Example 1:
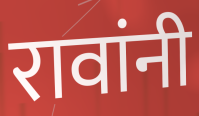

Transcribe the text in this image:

रावांनी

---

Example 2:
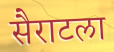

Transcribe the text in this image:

सैराटला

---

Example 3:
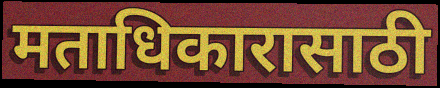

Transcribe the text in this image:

मताधिकारासाठी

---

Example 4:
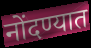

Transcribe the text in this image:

नोंदण्यात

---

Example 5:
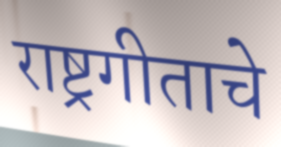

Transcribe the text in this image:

राष्ट्रगीताचे